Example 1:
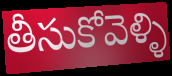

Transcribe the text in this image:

తీసుకోవెళ్ళి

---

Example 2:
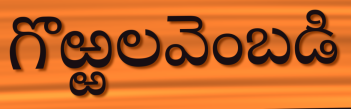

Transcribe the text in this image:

గొఱ్ఱలవెంబడి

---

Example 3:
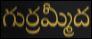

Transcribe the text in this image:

గుర్రమ్మీద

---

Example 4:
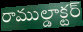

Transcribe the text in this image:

రాముల్డాక్టర్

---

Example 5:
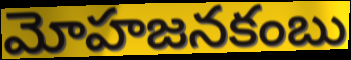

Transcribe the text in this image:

మోహజనకంబు